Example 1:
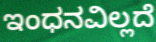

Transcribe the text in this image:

ಇಂಧನವಿಲ್ಲದೆ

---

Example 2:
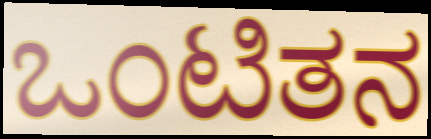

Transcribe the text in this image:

ಒಂಟಿತನ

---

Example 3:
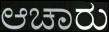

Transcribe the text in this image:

ಆಚಾರು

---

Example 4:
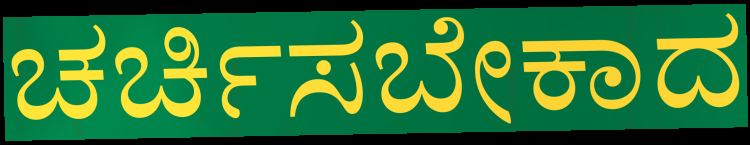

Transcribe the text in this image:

ಚರ್ಚಿಸಬೇಕಾದ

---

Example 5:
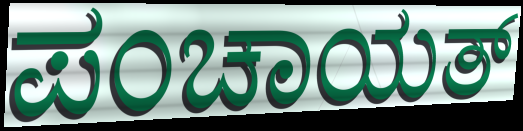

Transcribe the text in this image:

ಪಂಚಾಯತ್